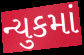
ન્યુકમાં